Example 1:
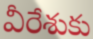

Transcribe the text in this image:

వీరేశుకు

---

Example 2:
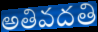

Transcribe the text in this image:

అతివదతి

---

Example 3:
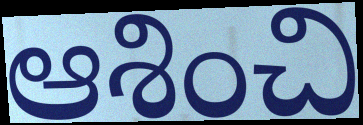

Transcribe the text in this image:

ఆశించి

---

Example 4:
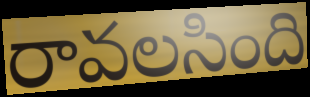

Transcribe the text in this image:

రావలసింది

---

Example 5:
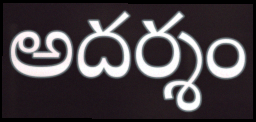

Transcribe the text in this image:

అదర్శం